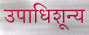
उपाधिशून्य